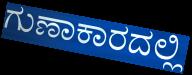
ಗುಣಾಕಾರದಲ್ಲಿ